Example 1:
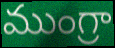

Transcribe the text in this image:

ముంగ్రా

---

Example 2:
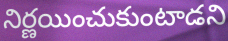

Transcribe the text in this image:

నిర్ణయించుకుంటాడని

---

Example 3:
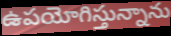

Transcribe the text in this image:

ఉపయోగిస్తున్నాను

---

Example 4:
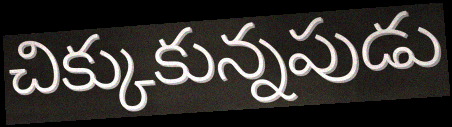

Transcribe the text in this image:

చిక్కుకున్నపుడు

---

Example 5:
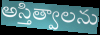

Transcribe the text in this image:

అస్తిత్వాలను